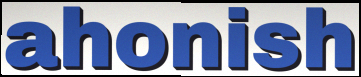
ahonish